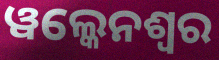
ୱଲ୍କେନଶ୍ୱର